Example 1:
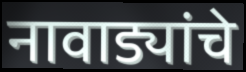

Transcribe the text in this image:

नावाड्यांचे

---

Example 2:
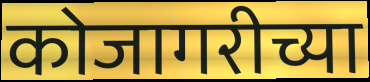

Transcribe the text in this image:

कोजागरीच्या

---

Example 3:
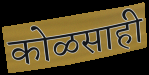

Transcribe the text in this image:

कोळसाही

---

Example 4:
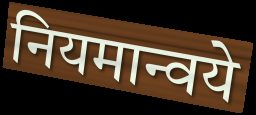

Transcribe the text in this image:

नियमान्वये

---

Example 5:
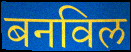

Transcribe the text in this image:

बनविल